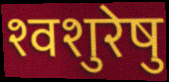
श्वशुरेषु